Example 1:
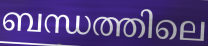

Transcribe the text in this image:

ബന്ധത്തിലെ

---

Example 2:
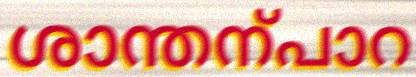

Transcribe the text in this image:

ശാന്തന്പാറ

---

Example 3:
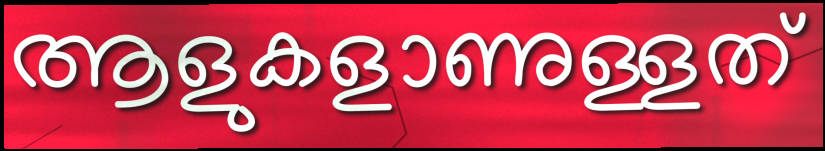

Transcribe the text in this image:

ആളുകളാണുള്ളത്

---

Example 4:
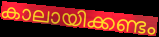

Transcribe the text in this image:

കാലായിക്കണ്ടം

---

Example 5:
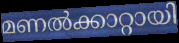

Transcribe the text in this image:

മണൽക്കാറ്റായി